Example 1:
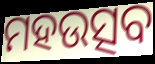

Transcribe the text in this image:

ମହଉତ୍ସବ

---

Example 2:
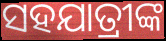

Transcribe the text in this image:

ସହଯାତ୍ରୀଙ୍କ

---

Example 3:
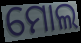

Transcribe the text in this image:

ମୋଲ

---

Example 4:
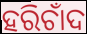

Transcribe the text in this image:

ହରିଚାଁଦ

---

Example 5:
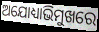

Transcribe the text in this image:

ଅଯୋଧ୍ୟାଭିମୁଖରେ